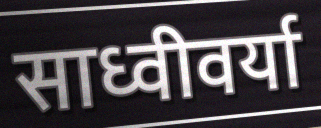
साध्वीवर्या